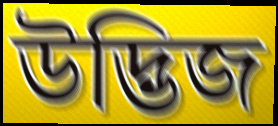
উদ্ভিজ